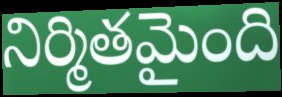
నిర్మితమైంది